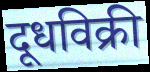
दूधविक्री